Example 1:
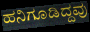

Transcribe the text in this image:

ಹನಿಗೂಡಿದ್ದವು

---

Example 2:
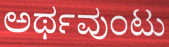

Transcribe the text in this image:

ಅರ್ಥವುಂಟು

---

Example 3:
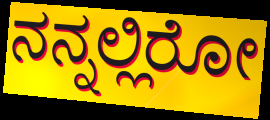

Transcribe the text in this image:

ನನ್ನಲ್ಲಿರೋ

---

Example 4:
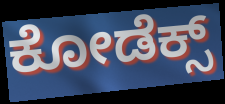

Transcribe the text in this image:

ಕೋಡೆಕ್ಸ್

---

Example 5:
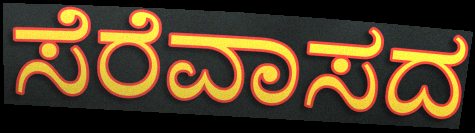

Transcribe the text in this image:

ಸೆರೆವಾಸದ